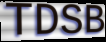
TDSB